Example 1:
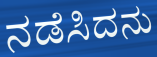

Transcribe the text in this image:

ನಡೆಸಿದನು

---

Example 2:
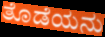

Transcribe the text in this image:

ತೊಡೆಯನು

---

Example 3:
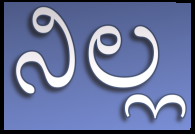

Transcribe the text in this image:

ನಿಲ್ಲ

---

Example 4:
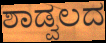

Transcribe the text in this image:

ಶಾಡ್ವಲದ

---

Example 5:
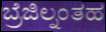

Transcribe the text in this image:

ಬ್ರೆಜಿಲ್ನಂತಹ